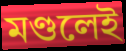
মণ্ডলেই